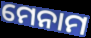
ମେନାମ